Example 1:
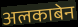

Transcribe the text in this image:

अलकाबेन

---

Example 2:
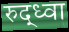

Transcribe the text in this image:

रुद्ध्वा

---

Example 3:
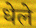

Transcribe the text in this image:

धेले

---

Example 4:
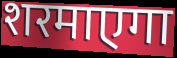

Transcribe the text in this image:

शरमाएगा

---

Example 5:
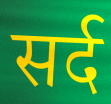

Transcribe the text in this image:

सर्द